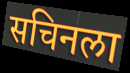
सचिनला